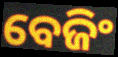
ବେଜିଂ